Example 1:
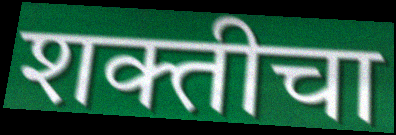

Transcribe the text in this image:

शक्‍तीचा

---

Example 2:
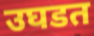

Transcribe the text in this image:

उघडत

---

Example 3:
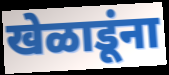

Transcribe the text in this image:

खेळाडूंना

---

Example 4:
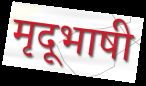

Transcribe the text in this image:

मृदूभाषी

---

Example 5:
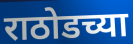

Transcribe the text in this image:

राठोडच्या